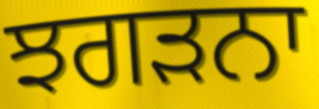
ਝਗੜਨਾ